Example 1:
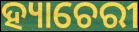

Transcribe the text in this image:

ହ୍ୟାଚେରୀ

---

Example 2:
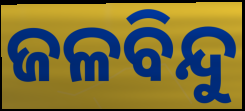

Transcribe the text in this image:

ଜଳବିନ୍ଦୁ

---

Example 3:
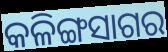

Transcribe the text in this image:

କଳିଙ୍ଗସାଗର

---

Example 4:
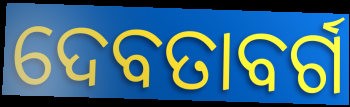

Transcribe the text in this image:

ଦେବତାବର୍ଗ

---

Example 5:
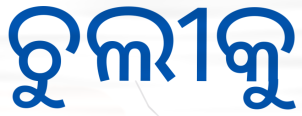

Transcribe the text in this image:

ଚୁଲୀକୁ